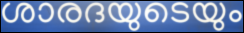
ശാരദയുടെയും